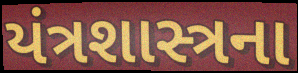
યંત્રશાસ્ત્રના